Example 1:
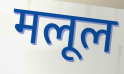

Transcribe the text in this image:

मलूल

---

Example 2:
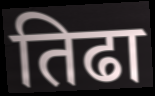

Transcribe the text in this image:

तिढा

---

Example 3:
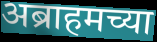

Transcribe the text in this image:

अब्राहमच्या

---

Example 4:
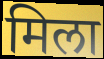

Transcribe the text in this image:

मिला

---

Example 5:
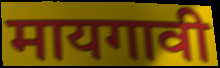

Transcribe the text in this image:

मायगावी